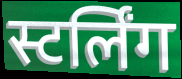
स्टर्लिंग